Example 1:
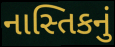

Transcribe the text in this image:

નાસ્તિકનું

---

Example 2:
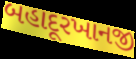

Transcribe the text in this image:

બહાદૂરખાનજી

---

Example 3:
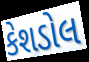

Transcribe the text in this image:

કેશડોલ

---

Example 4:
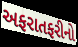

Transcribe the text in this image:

અફરાતફરીનો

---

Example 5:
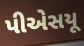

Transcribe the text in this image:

પીએસયૂ